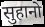
सुहानो